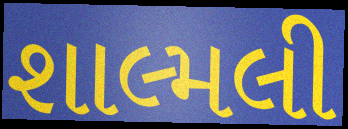
શાલ્મલી